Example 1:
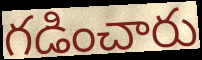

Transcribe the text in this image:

గడించారు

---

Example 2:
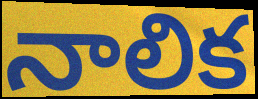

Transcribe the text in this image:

నాలిక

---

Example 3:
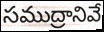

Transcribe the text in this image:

సముద్రానివే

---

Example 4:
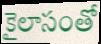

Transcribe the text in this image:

కైలాసంతో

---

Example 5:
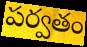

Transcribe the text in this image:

పర్వతం